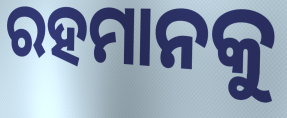
ରହମାନକୁ